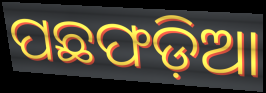
ପଛଫଡ଼ିଆ